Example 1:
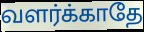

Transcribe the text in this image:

வளர்க்காதே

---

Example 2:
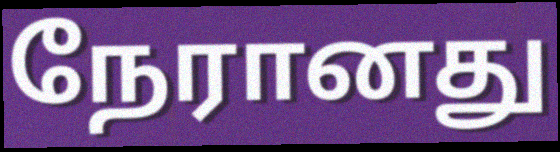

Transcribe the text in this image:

நேரானது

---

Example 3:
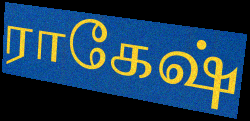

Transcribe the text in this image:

ராகேஷ்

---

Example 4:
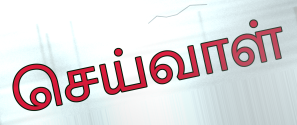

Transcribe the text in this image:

செய்வாள்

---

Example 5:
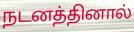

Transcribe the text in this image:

நடனத்தினால்